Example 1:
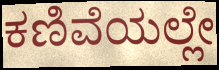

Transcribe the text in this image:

ಕಣಿವೆಯಲ್ಲೇ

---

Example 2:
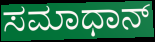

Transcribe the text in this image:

ಸಮಾಧಾನ್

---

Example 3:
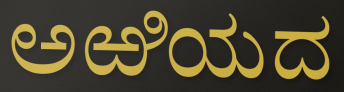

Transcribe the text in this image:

ಅಱಿಯದ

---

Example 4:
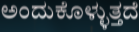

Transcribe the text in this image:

ಅಂದುಕೊಳ್ಳುತ್ತದೆ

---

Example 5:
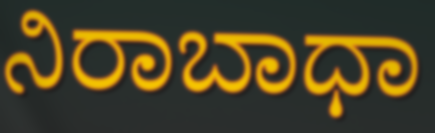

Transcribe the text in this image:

ನಿರಾಬಾಧಾ